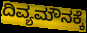
ದಿವ್ಯಮೌನಕ್ಕೆ